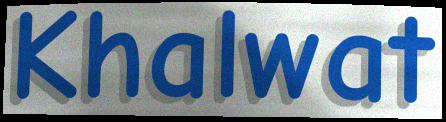
Khalwat